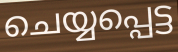
ചെയ്യപ്പെട്ട